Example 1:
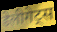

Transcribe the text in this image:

डेलीगेट्स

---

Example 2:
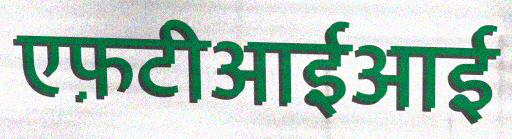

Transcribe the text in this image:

एफ़टीआईआई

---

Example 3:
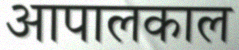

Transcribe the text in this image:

आपालकाल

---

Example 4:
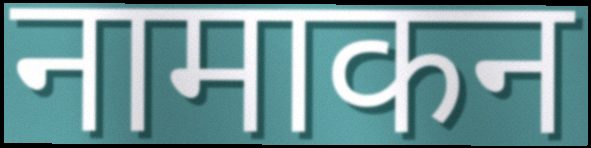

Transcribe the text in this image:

नामाकन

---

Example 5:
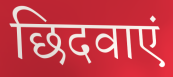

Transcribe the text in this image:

छिदवाएं